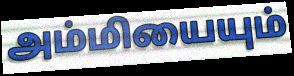
அம்மியையும்